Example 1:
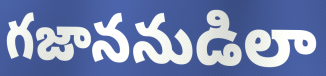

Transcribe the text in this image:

గజాననుడిలా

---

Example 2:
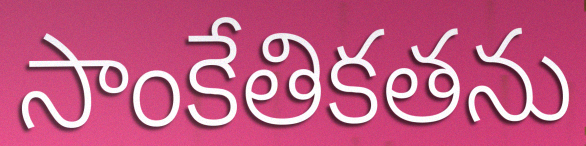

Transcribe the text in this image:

సాంకేతికతను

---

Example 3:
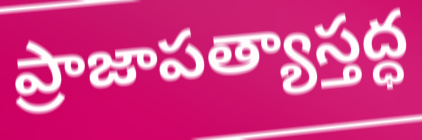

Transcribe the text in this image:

ప్రాజాపత్యాస్తద్ధ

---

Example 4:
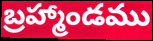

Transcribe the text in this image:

బ్రహ్మాండము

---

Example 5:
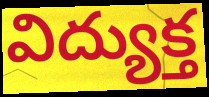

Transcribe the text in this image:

విద్యుక్త